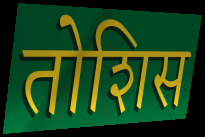
तोशिस